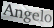
Angelo